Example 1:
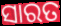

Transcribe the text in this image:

ସାରତ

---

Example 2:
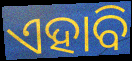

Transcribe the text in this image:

ଏହାବି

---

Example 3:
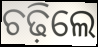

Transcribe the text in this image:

ଚଢ଼ିଲେ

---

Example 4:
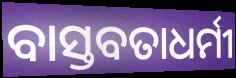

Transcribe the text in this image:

ବାସ୍ତବତାଧର୍ମୀ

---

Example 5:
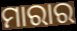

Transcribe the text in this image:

ମାରାର